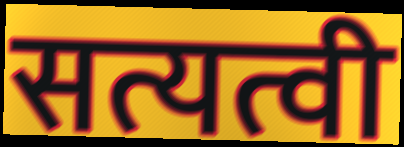
सत्यत्वी